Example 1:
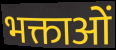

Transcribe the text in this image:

भक्ताओं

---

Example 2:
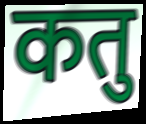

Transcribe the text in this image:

कतु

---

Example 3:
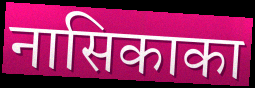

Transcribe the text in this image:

नासिकाका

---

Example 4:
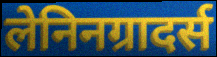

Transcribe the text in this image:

लेनिनग्रादर्स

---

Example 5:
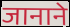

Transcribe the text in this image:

जानाने